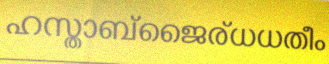
ഹസ്താബ്ജൈര്ധധതീം